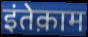
इंतेक़ाम